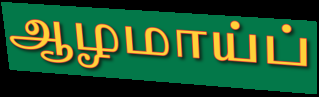
ஆழமாய்ப்